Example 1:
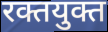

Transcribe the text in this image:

रक्तयुक्त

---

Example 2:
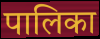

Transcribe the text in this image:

पालिका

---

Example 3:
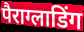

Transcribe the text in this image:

पैराग्लाडिंग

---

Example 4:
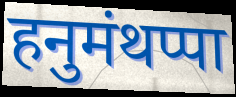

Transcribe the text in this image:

हनुमंथप्पा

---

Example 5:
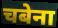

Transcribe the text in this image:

चबेना